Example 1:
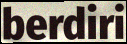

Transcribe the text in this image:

berdiri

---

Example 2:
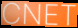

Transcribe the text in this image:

CNET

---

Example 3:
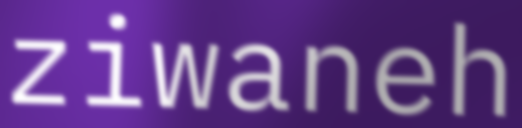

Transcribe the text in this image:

ziwaneh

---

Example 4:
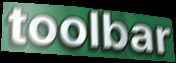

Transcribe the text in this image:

toolbar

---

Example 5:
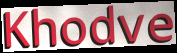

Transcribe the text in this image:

Khodve